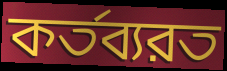
কর্তব্যরত